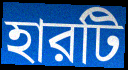
হারটি